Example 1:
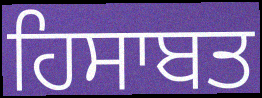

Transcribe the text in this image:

ਹਿਸਾਬਤ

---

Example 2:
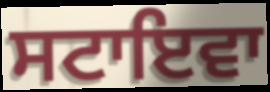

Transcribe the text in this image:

ਸਟਾਇਵਾ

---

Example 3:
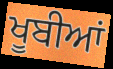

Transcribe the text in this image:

ਖੂਬੀਆਂ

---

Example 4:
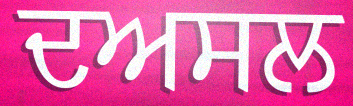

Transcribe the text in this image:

ਦਅਸਲ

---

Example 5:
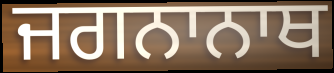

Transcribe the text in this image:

ਜਗਨਾਨਾਥ